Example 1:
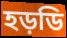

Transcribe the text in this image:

হড়ডি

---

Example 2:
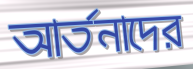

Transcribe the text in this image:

আর্তনাদের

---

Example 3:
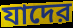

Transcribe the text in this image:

যাদের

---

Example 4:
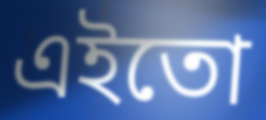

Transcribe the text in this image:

এইতো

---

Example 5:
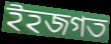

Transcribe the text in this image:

ইহজগত